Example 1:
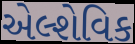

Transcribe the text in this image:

એલ્શેવિક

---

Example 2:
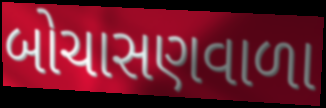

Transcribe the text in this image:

બોચાસણવાળા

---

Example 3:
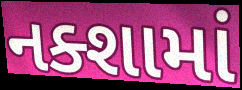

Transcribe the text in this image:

નક્શામાં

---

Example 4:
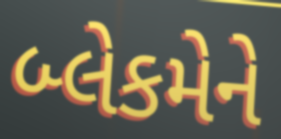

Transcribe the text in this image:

બ્લેકમેને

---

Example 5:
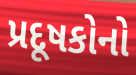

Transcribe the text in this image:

પ્રદૂષકોનો